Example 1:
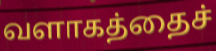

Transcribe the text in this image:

வளாகத்தைச்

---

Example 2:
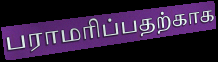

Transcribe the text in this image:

பராமரிப்பதற்காக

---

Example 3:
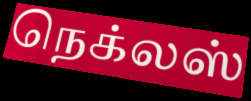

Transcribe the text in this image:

நெக்லஸ்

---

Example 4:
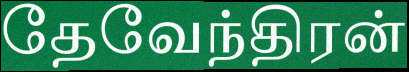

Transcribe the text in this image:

தேவேந்திரன்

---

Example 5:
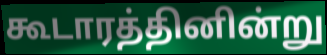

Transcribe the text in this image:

கூடாரத்தினின்று